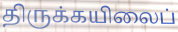
திருக்கயிலைப்